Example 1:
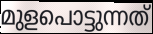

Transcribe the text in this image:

മുളപൊട്ടുന്നത്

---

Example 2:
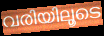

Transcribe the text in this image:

വരിയിലൂടെ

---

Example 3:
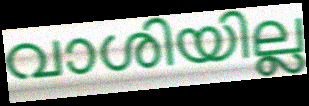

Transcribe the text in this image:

വാശിയില്ല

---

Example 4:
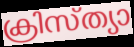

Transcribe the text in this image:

ക്രിസ്‌ത്യാ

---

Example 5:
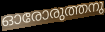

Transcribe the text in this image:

ഓരോരുത്തനു